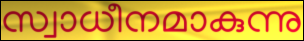
സ്വാധീനമാകുന്നു